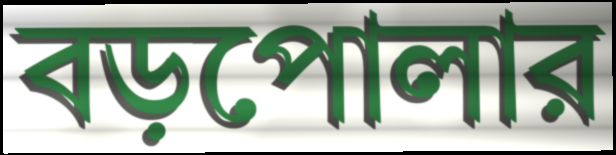
বড়পোলার